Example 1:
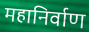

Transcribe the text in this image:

महानिर्वाण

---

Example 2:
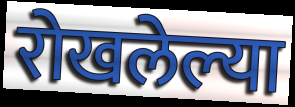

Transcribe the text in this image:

रोखलेल्या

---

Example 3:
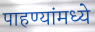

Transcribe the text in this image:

पाहण्यांमध्ये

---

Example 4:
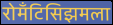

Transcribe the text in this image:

रोमँटिसिझमला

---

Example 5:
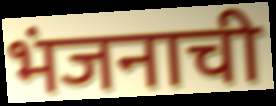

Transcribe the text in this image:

भंजनाची